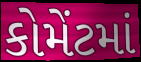
કોમેંટમાં